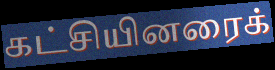
கட்சியினரைக்